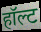
हॉल्‍ट